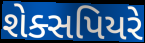
શેક્સપિયરે